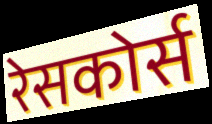
रेसकोर्स